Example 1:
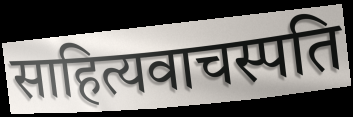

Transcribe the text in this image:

साहित्यवाचस्पति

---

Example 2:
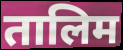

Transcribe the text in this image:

तालिम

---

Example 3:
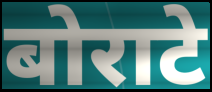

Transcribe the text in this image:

बोराटे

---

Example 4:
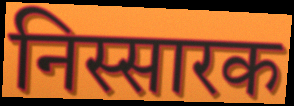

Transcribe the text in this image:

निस्सारक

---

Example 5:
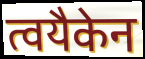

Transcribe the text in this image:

त्वयैकेन